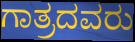
ಗಾತ್ರದವರು